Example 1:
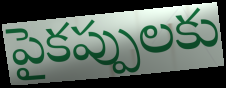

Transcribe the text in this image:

పైకప్పులకు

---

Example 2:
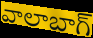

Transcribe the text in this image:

వాలాబాగ్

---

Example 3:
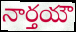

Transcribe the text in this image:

నార్తయౌ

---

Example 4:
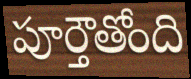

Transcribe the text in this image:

పూర్తౌతోంది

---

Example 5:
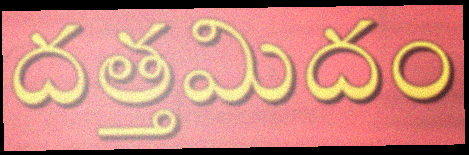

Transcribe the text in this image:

దత్తమిదం